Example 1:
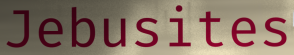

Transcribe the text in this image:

Jebusites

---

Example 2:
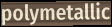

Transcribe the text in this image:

polymetallic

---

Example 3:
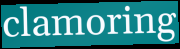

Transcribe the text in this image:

clamoring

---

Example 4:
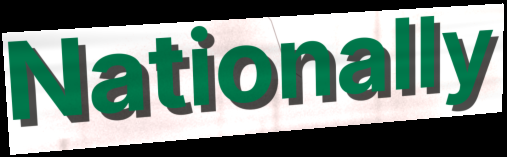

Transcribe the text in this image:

Nationally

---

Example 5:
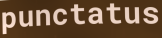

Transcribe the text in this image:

punctatus